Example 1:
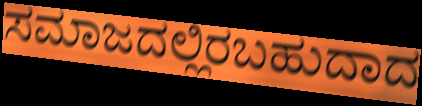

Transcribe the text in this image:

ಸಮಾಜದಲ್ಲಿರಬಹುದಾದ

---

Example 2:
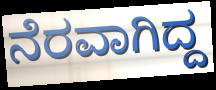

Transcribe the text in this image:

ನೆರವಾಗಿದ್ದ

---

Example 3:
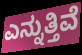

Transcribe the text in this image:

ಎನ್ನುತ್ತಿವೆ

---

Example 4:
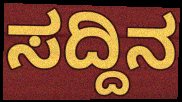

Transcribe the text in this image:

ಸದ್ದಿನ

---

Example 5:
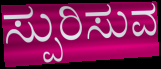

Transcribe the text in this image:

ಸ್ಪುರಿಸುವ